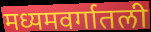
मध्यमवर्गातली